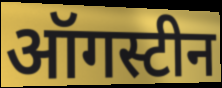
ऑगस्टीन